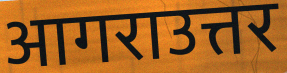
आगराउत्तर